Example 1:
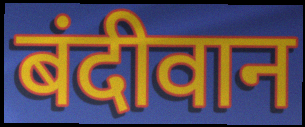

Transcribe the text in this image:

बंदीवान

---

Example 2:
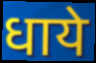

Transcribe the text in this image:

धाये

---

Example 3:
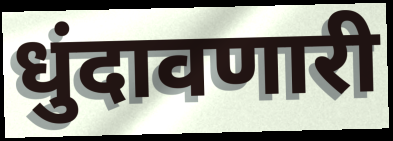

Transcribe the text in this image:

धुंदावणारी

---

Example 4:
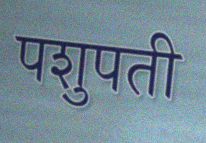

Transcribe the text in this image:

पशुपती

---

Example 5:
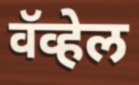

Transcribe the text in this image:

वॅव्हेल